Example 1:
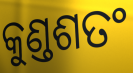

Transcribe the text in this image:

କୁଣ୍ଡଶତଂ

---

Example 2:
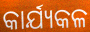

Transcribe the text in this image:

କାର୍ଯ୍ୟକଳ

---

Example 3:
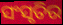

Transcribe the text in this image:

ସଂସୃତିର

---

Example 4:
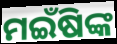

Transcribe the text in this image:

ମଇଁଷିଙ୍କ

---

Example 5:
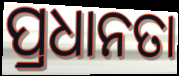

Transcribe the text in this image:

ପ୍ରଧାନତା